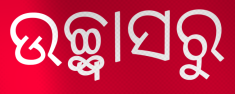
ଉଚ୍ଛ୍ୱାସରୁ